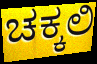
ಚಕ್ಕಲಿ